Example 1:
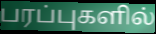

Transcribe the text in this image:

பரப்புகளில்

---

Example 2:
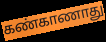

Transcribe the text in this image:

கண்காணாது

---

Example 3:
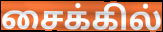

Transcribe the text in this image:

சைக்கில்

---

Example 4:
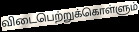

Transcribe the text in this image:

விடைபெற்றுக்கொள்ளும்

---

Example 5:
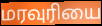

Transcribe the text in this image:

மரவுரியை